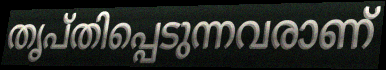
തൃപ്തിപ്പെടുന്നവരാണ്